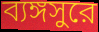
ব্যঙ্গসুরে